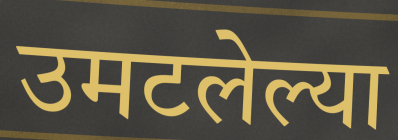
उमटलेल्या